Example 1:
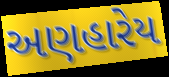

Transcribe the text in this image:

અણહારેય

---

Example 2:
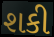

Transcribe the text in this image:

શકી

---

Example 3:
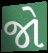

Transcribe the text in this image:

જો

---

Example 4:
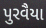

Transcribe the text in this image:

પુરવૈયા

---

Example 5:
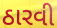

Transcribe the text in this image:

ઠારવી